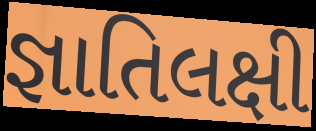
જ્ઞાતિલક્ષી